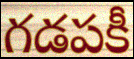
గడపకీ